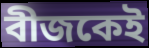
বীজকেই